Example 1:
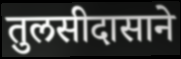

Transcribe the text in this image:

तुलसीदासाने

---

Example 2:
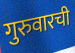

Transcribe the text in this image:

गुरुवारची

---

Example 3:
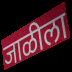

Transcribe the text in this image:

जाळीला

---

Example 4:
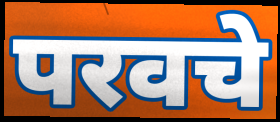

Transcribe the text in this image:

परवचे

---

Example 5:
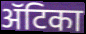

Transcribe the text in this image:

ॲटिका